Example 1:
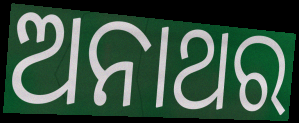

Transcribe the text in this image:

ଅନାଥର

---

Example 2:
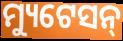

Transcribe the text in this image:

ମ୍ୟୁଟେସନ୍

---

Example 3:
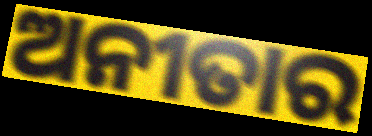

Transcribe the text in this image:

ଅନୀତାର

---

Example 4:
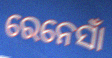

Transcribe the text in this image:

ରେନେସାଁ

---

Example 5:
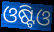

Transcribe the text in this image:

ଓଷ୍ଟିଓ